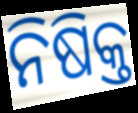
ନିଷିକ୍ତ